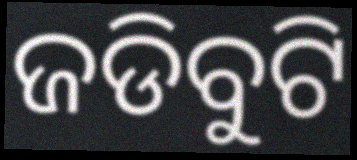
ଜଡିବୁଟି